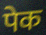
पेक